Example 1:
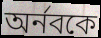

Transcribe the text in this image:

অর্নবকে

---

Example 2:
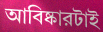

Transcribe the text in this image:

আবিষ্কারটাই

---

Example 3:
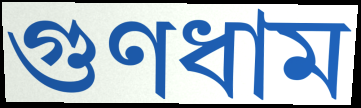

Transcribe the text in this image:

গুণধাম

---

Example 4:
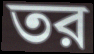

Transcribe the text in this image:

তর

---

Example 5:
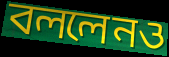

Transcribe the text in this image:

বললেনও